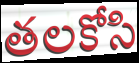
తలకోసి